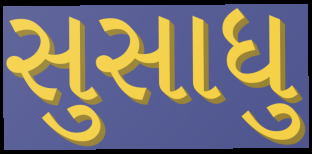
સુસાધુ